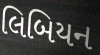
લિબિયન